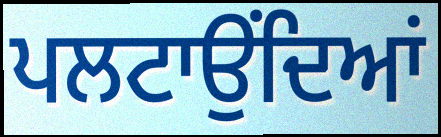
ਪਲਟਾਉਂਦਿਆਂ